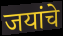
जयांचे